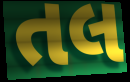
તલ